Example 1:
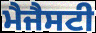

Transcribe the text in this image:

ਮੈਜੈਸਟੀ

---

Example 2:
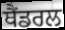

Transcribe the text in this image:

ਥੈਂਡਰਲ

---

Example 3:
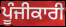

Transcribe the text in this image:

ਪੂੰਜੀਕਾਰੀ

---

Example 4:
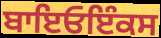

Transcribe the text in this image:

ਬਾਇਓਇੰਕਸ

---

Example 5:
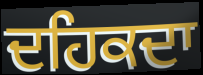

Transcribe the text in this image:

ਦਹਿਕਦਾ